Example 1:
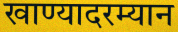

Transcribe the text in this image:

खाण्यादरम्यान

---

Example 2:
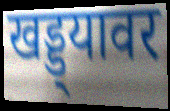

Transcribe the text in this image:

खड्ड्यावर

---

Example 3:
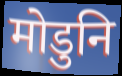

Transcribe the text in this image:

मोडुनि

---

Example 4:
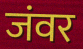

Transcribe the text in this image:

जंवर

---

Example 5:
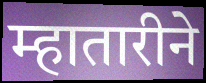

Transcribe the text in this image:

म्हातारीने